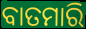
ବାତମାରି